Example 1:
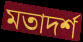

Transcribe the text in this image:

মতাদর্শ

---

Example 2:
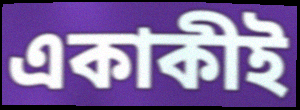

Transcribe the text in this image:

একাকীই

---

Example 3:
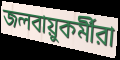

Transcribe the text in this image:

জলবায়ুকর্মীরা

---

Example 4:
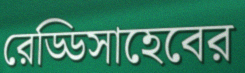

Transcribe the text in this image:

রেড্ডিসাহেবের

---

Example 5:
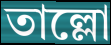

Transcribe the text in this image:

তাল্লো